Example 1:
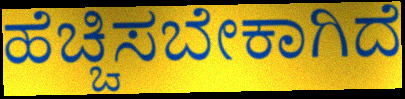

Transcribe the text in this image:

ಹೆಚ್ಚಿಸಬೇಕಾಗಿದೆ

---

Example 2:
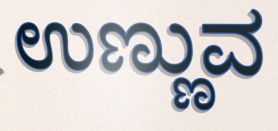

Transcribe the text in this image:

ಉಣ್ಣುವ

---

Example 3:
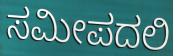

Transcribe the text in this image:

ಸಮೀಪದಲಿ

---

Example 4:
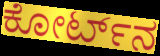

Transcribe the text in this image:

ಕೋರ್ಟ್‌ನ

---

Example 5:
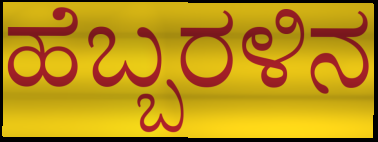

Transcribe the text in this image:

ಹೆಬ್ಬರಳಿನ